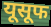
यूसूफ